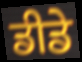
ਡੀਡੇ